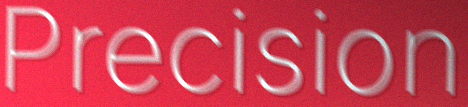
Precision